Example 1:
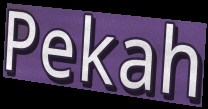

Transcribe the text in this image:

Pekah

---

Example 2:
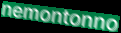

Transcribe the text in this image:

nemontonno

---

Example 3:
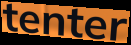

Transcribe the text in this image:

tenter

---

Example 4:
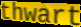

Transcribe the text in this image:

thwart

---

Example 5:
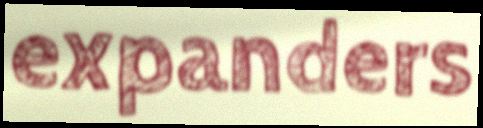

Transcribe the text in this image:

expanders